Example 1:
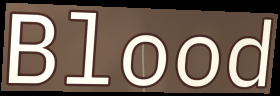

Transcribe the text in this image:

Blood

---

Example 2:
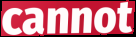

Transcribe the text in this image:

cannot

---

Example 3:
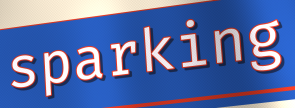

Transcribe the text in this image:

sparking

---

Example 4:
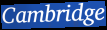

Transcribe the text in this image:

Cambridge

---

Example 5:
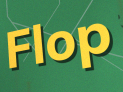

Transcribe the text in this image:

Flop